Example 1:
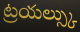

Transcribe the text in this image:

ట్రయల్స్కు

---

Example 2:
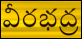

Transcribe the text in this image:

వీరభద్ర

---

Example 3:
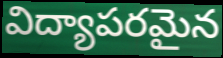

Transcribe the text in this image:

విద్యాపరమైన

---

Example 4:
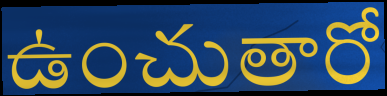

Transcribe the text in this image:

ఉంచుతారో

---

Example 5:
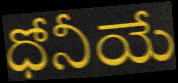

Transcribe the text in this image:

ధోనీయే